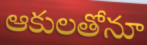
ఆకులతోనూ